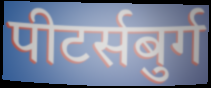
पीटर्सबुर्ग